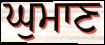
ਘੁਮਾਣ